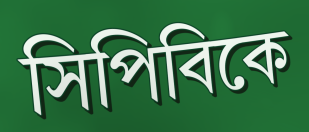
সিপিবিকে